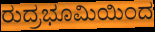
ರುದ್ರಭೂಮಿಯಿಂದ